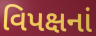
વિપક્ષનાં